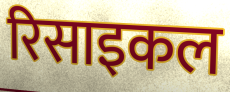
रिसाइकल